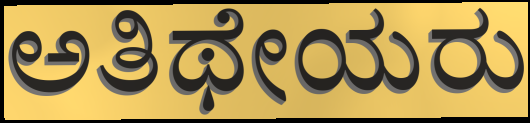
ಅತಿಥೇಯರು